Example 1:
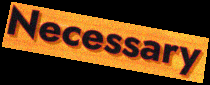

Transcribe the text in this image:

Necessary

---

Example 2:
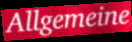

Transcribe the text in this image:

Allgemeine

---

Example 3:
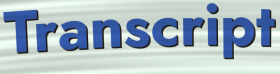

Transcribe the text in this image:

Transcript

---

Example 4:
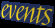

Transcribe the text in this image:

events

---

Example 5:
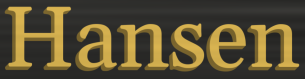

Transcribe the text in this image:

Hansen